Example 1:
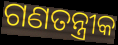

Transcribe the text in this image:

ଗଣତନ୍ତ୍ରୀକ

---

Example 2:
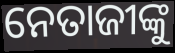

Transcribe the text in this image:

ନେତାଜୀଙ୍କୁ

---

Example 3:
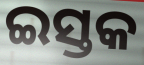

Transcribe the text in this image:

ଇସ୍ତକ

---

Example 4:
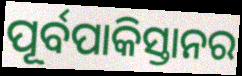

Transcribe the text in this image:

ପୂର୍ବପାକିସ୍ତାନର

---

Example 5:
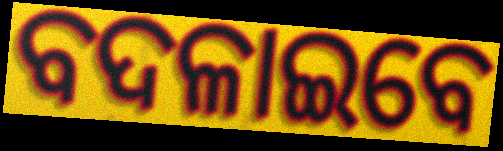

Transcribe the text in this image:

ବଦଳାଇବେ